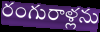
రంగురాళ్లను